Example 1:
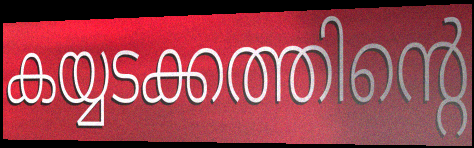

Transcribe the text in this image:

കയ്യടക്കത്തിന്റെ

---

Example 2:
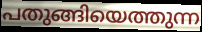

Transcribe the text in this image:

പതുങ്ങിയെത്തുന്ന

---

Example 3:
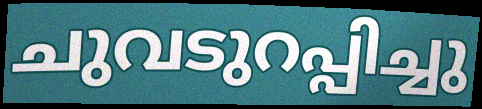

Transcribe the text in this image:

ചുവടുറപ്പിച്ചു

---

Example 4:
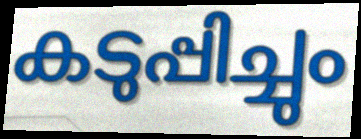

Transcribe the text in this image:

കടുപ്പിച്ചും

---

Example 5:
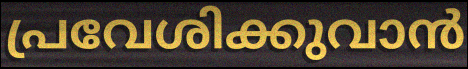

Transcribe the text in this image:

പ്രവേശിക്കുവാൻ